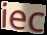
iec